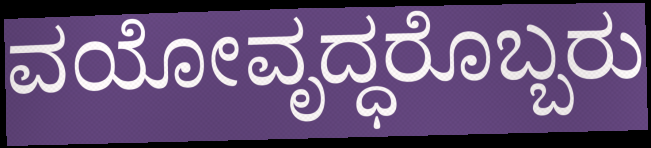
ವಯೋವೃದ್ಧರೊಬ್ಬರು